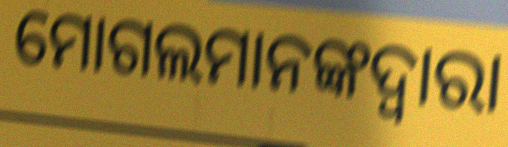
ମୋଗଲମାନଙ୍କଦ୍ୱାରା